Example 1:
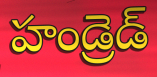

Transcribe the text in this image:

హండ్రెడ్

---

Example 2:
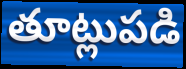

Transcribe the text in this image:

తూట్లుపడి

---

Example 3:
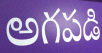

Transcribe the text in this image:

అగపడి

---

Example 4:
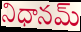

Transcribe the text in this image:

నిధానమ్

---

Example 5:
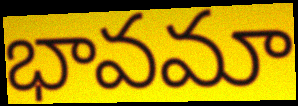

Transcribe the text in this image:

భావమా